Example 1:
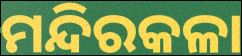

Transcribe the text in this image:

ମନ୍ଦିରକଳା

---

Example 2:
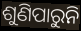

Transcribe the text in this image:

ଶୁଣିପାରୁନି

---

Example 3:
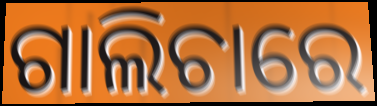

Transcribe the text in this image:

ଗାଲିଚାରେ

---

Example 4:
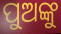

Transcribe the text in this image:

ପୁଅଙ୍କୁ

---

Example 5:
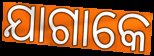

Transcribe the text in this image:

ଯାଗାକେ